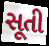
સૂતી